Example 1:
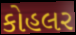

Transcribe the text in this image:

કોહલર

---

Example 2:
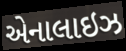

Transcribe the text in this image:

એનાલાઇઝ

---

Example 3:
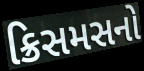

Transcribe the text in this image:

ક્રિસમસનો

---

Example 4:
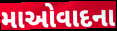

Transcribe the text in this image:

માઓવાદના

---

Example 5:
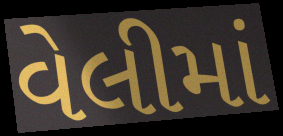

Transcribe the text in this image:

વેલીમાં